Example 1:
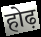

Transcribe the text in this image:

होढ़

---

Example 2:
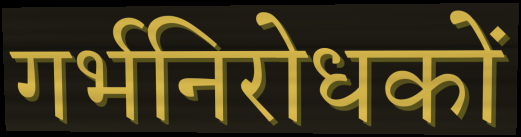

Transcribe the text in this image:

गर्भनिरोधकों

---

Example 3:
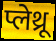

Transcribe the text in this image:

प्लेथ्रू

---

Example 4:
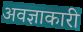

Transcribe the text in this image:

अवज्ञाकारी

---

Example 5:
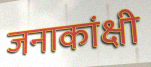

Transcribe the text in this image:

जनाकांक्षी